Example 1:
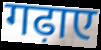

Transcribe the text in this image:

गढ़ाए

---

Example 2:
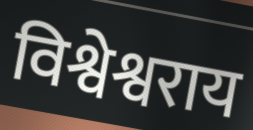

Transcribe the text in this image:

विश्वेश्वराय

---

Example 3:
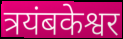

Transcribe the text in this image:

त्रयंबकेश्वर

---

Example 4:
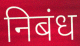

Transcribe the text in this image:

निबंध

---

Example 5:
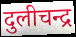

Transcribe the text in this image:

दुलीचन्द्र